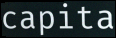
capita